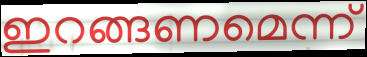
ഇറങ്ങണമെന്ന്